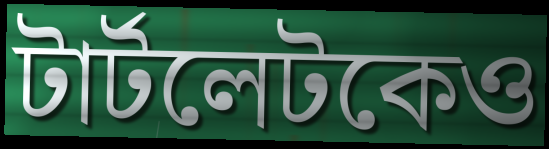
টার্টলেটকেও